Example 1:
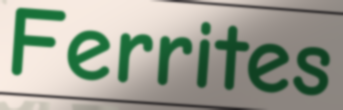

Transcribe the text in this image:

Ferrites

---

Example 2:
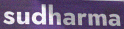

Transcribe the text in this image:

sudharma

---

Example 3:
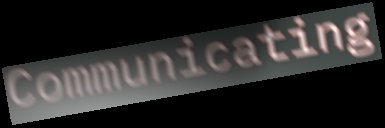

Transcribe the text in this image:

Communicating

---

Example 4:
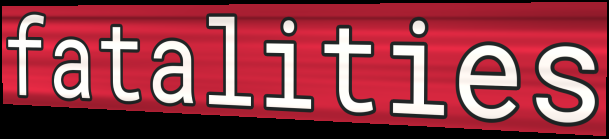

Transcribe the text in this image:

fatalities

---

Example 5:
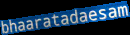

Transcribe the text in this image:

bhaaratadaesam